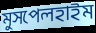
মুসপেলহাইম